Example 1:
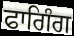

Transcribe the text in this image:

ਫਾਗਿੰਗ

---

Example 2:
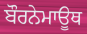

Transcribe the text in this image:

ਬੌਰਨੇਮਾਊਥ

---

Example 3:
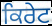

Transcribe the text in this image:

ਕਿਰੇਟ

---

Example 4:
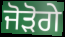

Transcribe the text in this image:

ਜੋੜੋਗੇ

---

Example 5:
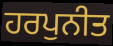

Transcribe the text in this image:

ਹਰਪੁਨੀਤ